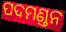
ପଦମଣ୍ଡନ